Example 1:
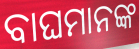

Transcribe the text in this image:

ବାଘମାନଙ୍କ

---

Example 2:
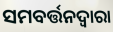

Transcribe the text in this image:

ସମବର୍ତ୍ତନଦ୍ୱାରା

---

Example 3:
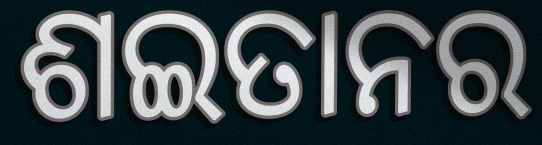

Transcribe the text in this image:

ଶଇତାନର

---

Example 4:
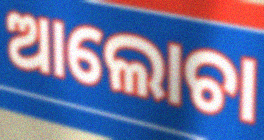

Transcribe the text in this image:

ଆଲୋଚା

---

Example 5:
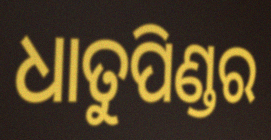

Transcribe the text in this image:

ଧାତୁପିଣ୍ଡର